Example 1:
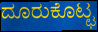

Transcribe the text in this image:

ದೂರುಕೊಟ್ಟ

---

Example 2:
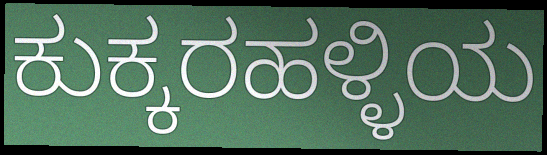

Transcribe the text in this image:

ಕುಕ್ಕರಹಳ್ಳಿಯ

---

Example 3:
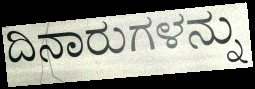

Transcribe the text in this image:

ದಿನಾರುಗಳನ್ನು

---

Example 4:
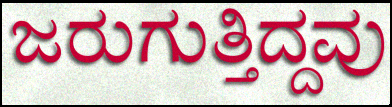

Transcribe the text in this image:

ಜರುಗುತ್ತಿದ್ದವು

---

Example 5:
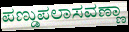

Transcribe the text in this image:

ಪಣ್ಡುಪಲಾಸವಣ್ಣಾ